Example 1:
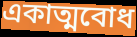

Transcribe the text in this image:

একাত্মবোধ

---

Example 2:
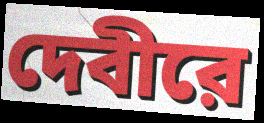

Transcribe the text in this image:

দেবীরে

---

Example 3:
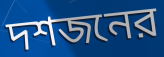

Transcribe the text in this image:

দশজনের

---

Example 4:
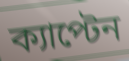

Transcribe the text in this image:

ক্যাপ্টেন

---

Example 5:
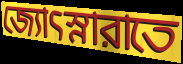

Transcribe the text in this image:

জ্যোৎস্নারাতে